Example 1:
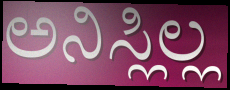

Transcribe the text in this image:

ಅನಿಸ್ಲಿಲ್ಲ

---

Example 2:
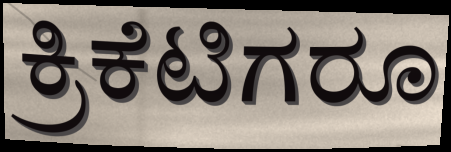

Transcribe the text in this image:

ಕ್ರಿಕೆಟಿಗರೂ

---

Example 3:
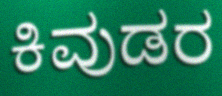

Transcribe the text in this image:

ಕಿವುಡರ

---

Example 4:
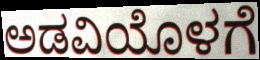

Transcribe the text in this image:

ಅಡವಿಯೊಳಗೆ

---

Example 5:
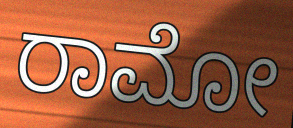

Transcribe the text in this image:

ರಾಮೋ